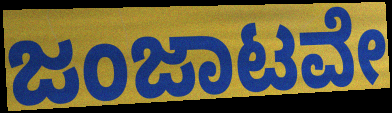
ಜಂಜಾಟವೇ